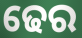
ଢେର